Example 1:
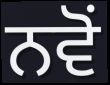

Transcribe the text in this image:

ਨਵੋਂ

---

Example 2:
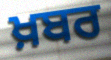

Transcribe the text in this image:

ਖ਼ਬਰ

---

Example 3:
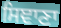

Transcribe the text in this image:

ਸਿਞਾਣਾ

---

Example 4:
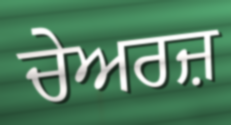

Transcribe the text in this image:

ਚੇਅਰਜ਼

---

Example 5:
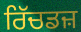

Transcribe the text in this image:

ਰਿੱਚਡਜ਼